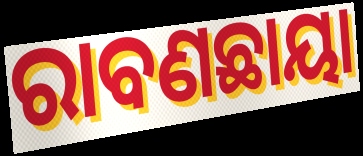
ରାବଣଛାୟା